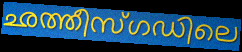
ഛത്തീസ്ഗഡിലെ